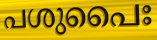
പശുപൈഃ